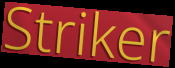
Striker